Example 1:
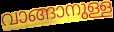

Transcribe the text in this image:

വാങ്ങാനുള്ള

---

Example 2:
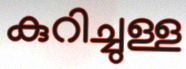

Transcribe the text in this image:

കുറിച്ചുള്ള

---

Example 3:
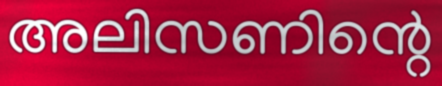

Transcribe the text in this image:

അലിസണിന്റെ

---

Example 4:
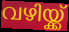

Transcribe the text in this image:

വഴിയ്ക്ക്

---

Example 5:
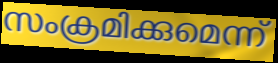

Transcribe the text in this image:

സംക്രമിക്കുമെന്ന്